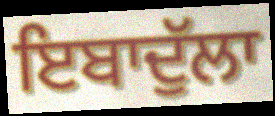
ਇਬਾਦੁੱਲਾ